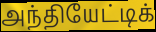
அந்தியேட்டிக்